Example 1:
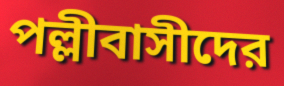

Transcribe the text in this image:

পল্লীবাসীদের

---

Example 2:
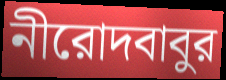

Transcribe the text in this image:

নীরোদবাবুর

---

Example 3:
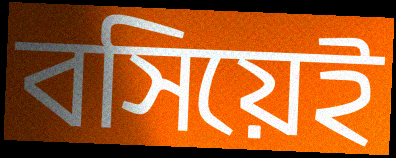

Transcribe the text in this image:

বসিয়েই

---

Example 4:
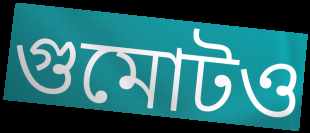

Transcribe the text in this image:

গুমোটও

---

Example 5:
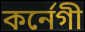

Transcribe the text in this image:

কর্নেগী